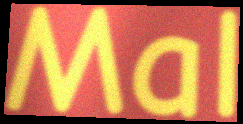
Mal